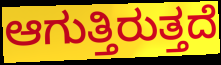
ಆಗುತ್ತಿರುತ್ತದೆ